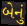
બેનું